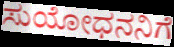
ಸುಯೋಧನನಿಗೆ